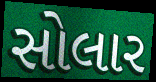
સોલાર